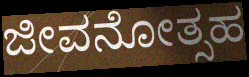
ಜೀವನೋತ್ಸಹ